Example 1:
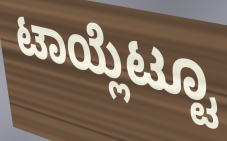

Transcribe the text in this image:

ಟಾಯ್ಲೆಟ್ಟೂ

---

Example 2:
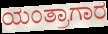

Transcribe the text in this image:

ಯಂತ್ರಾಗಾರ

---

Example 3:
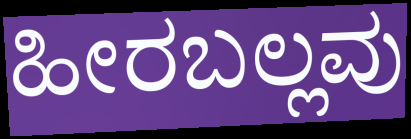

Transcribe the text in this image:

ಹೀರಬಲ್ಲವು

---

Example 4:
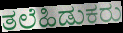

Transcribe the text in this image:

ತಲೆಹಿಡುಕರು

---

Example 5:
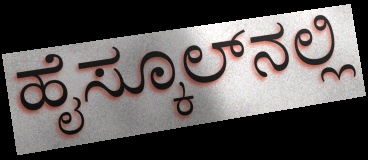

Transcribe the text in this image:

ಹೈಸ್ಕೂಲ್‌ನಲ್ಲಿ